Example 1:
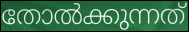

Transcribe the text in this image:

തോൽക്കുന്നത്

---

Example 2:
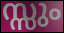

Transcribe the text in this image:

സ്സും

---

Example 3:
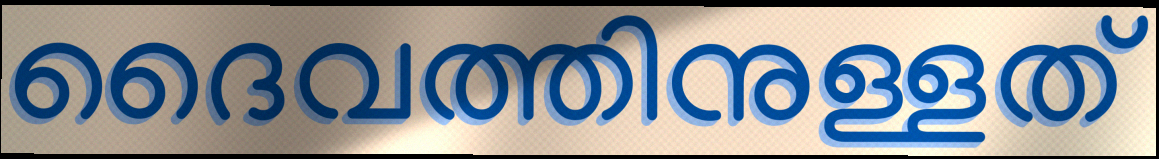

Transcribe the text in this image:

ദൈവത്തിനുള്ളത്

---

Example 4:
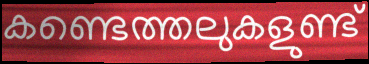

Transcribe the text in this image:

കണ്ടെത്തലുകളുണ്ട്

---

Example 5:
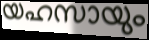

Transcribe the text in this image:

യഹസായും